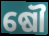
ଷୌ